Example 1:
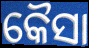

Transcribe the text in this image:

କୈସା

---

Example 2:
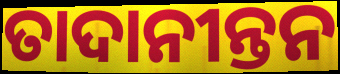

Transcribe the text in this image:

ତାଦାନୀନ୍ତନ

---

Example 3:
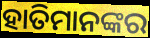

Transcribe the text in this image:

ହାତିମାନଙ୍କର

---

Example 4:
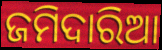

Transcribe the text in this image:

ଜମିଦାରିଆ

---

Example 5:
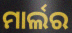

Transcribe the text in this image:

ମାର୍ଲର